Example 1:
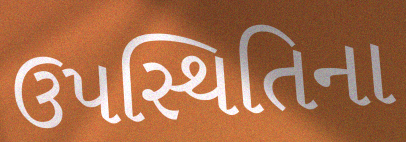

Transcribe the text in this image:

ઉપસ્થિતિના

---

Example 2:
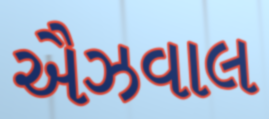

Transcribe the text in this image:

ઐઝવાલ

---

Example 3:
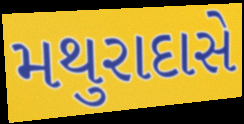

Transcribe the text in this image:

મથુરાદાસે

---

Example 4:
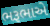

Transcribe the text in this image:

ભરૂભાએ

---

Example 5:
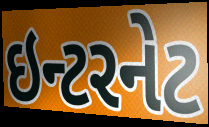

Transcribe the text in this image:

ઇન્ટરનેટ